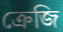
ক্রেজি